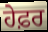
ਹੇਫ਼ਰ